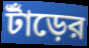
টাঁড়ের